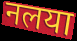
नलया